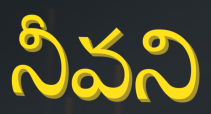
నీవని